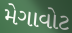
મેગાવોટ